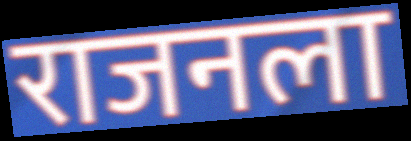
राजनला